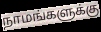
நாமங்களுக்கு